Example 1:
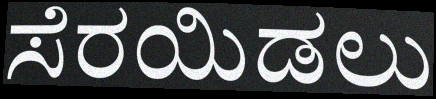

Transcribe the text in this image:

ಸೆರಯಿಡಲು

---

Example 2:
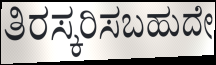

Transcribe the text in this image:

ತಿರಸ್ಕರಿಸಬಹುದೇ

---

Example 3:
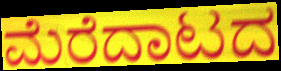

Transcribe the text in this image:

ಮೆರೆದಾಟದ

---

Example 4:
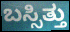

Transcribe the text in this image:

ಬಸ್ಸಿತ್ತು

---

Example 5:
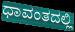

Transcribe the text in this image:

ಧಾವಂತದಲ್ಲಿ